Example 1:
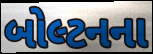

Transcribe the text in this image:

બોલ્ટનના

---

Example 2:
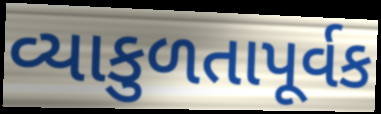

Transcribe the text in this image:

વ્યાકુળતાપૂર્વક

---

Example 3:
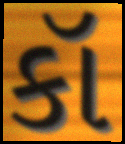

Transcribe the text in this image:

કૉ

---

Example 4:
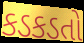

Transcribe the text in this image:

કડકડતો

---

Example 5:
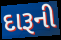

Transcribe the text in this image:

દારૂની